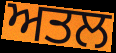
ਅਤਲ